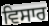
ਵਿਸਾਰ